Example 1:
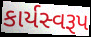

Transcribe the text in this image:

કાર્યસ્વરૂપ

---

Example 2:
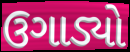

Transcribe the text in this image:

ઉગાડ્યો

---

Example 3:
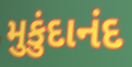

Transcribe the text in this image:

મુકુંદાનંદ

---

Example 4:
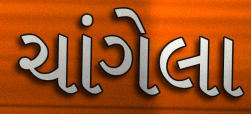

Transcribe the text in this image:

ચાંગેલા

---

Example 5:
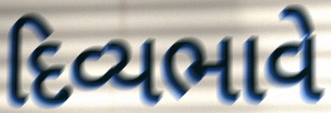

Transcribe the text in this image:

દિવ્યભાવે